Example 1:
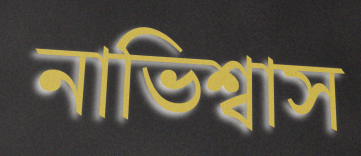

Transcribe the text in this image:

নাভিশ্বাস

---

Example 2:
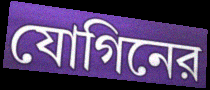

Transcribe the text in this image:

যোগিনের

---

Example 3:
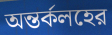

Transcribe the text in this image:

অন্তর্কলহের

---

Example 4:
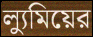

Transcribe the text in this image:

ল্যুমিয়ের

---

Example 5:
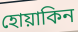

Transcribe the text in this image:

হোয়াকিন